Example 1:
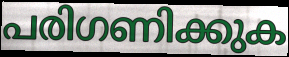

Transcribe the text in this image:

പരിഗണിക്കുക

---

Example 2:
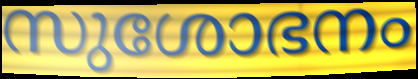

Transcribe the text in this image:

സുശോഭനം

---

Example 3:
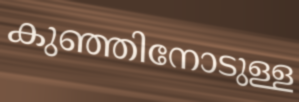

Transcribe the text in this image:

കുഞ്ഞിനോടുള്ള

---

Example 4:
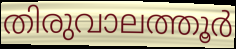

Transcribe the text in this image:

തിരുവാലത്തൂർ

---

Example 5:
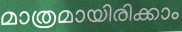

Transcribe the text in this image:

മാത്രമായിരിക്കാം